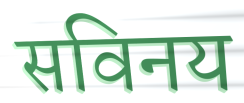
सविनय